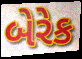
બેરેક